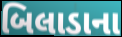
બિલાડાના